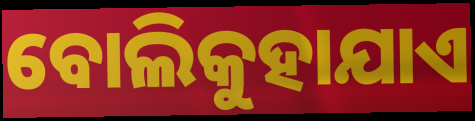
ବୋଲିକୁହାଯାଏ